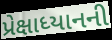
પ્રેક્ષાધ્યાનની